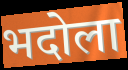
भदोला